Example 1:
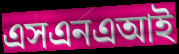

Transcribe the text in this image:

এসএনএআই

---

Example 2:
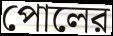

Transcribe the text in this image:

পোলের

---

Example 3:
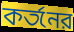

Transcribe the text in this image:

কর্তনের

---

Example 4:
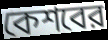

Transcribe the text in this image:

কেশবের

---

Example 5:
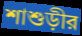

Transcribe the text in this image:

শাশুড়ীর